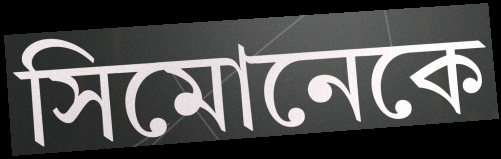
সিমোনেকে